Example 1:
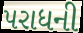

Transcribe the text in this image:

પરાધની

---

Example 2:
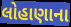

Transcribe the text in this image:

લોહાણાના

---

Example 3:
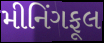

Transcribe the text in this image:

મીનિંગફૂલ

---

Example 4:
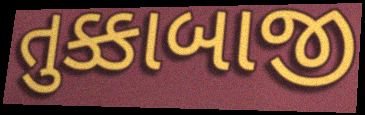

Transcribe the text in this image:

તુક્કાબાજી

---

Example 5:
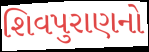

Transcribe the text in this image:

શિવપુરાણનો